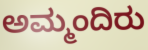
ಅಮ್ಮಂದಿರು